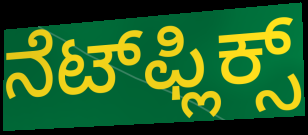
ನೆಟ್‌ಫ್ಲಿಕ್ಸ್